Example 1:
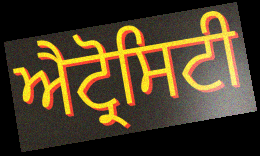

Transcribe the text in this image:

ਐਟ੍ਰੋਸਿਟੀ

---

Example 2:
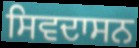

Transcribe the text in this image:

ਸਿਵਦਾਸਨ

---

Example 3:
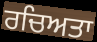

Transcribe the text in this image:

ਰਚਿਅਤਾ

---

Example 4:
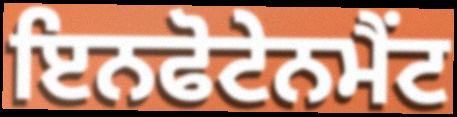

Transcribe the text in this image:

ਇਨਫੋਟੇਨਮੈਂਟ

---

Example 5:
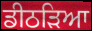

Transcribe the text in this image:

ਡੀਠੜਿਆ